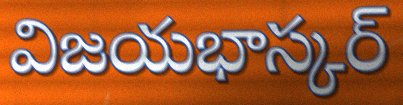
విజయభాస్కర్